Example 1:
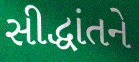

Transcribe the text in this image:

સીદ્ધાંતને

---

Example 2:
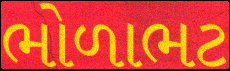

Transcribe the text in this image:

ભોળાભટ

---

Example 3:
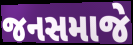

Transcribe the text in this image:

જનસમાજે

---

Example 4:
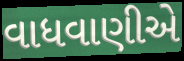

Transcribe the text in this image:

વાધવાણીએ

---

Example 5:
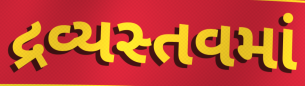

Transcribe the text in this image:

દ્રવ્યસ્તવમાં